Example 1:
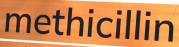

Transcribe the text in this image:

methicillin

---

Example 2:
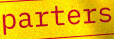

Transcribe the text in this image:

parters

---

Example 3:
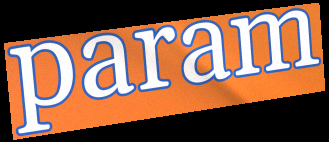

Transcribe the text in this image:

param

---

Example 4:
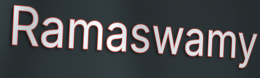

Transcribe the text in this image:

Ramaswamy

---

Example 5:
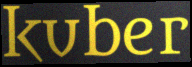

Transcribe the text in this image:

kuber